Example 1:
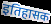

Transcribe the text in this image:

इतिहासक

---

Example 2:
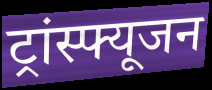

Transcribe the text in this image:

ट्रांस्फ्यूजन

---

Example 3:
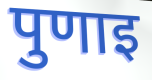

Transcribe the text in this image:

पुणाइ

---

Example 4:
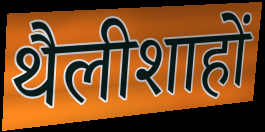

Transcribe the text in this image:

थैलीशाहों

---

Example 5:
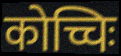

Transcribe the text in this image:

कोच्चिः